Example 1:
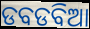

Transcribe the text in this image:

ଡବଡବିଆ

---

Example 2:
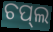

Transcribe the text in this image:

ଚପ୍‌ଲ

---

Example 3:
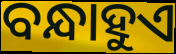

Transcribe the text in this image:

ବନ୍ଧାହୁଏ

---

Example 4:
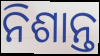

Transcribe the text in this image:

ନିଶାନ୍ତ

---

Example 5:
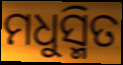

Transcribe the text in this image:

ମଧୁସ୍ମିତ